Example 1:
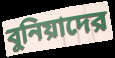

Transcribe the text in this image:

বুনিয়াদের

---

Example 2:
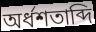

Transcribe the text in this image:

অর্ধশতাব্দি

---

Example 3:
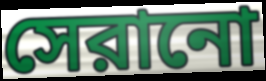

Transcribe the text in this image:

সেরানো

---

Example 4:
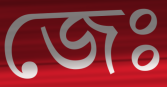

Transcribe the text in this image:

জেঃ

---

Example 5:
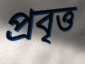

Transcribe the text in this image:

প্রবৃত্ত